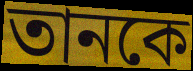
তানকে